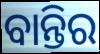
ବାନ୍ତିର